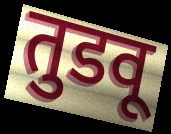
तुडवू